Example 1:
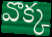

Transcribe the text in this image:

వొక్క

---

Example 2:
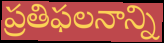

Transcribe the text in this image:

ప్రతిఫలనాన్ని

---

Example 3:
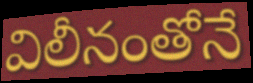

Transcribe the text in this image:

విలీనంతోనే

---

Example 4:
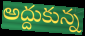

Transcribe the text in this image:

అద్దుకున్న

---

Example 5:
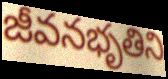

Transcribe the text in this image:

జీవనభృతిని